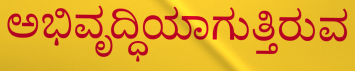
ಅಭಿವೃದ್ಧಿಯಾಗುತ್ತಿರುವ